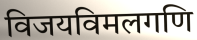
विजयविमलगणि